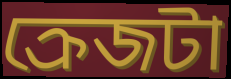
ক্রেজটা